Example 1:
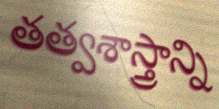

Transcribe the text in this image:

తత్వశాస్త్రాన్ని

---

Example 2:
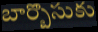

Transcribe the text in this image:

బార్బొసుకు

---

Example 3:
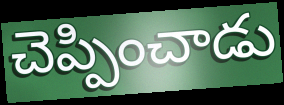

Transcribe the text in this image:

చెప్పించాడు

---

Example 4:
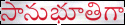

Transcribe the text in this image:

సానుభూతిగా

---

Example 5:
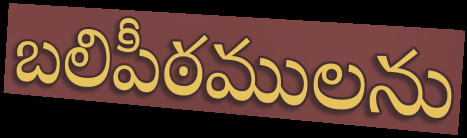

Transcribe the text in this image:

బలిపీఠములను